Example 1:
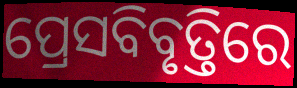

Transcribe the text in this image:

ପ୍ରେସବିବୃତ୍ତିରେ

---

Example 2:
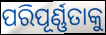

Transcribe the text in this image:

ପରିପୂର୍ଣ୍ଣତାକୁ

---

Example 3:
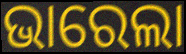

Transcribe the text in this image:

ଭାରେଲା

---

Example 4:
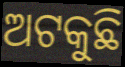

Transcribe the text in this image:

ଅଟକୁଛି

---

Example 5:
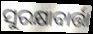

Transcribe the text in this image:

ସୁରକ୍ଷାବାର୍ତ୍ତା